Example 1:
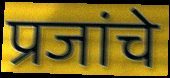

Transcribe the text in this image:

प्रजांचे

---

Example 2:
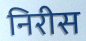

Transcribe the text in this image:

निरीस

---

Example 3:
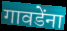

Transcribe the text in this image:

गावडेंना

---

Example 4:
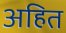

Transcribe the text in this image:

अहित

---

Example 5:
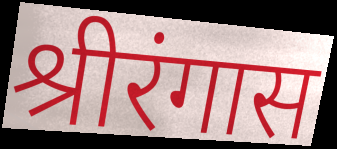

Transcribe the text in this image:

श्रीरंगास